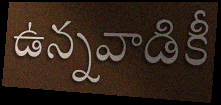
ఉన్నవాడికీ